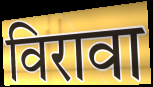
विरावा